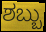
ಶಬ್ಬು